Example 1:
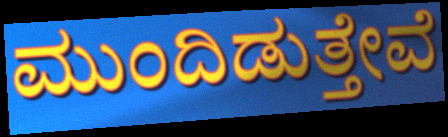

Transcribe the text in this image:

ಮುಂದಿಡುತ್ತೇವೆ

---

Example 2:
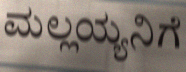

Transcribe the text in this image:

ಮಲ್ಲಯ್ಯನಿಗೆ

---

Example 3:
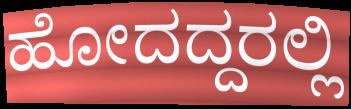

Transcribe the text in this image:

ಹೋದದ್ದರಲ್ಲಿ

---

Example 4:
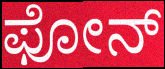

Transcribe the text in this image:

ಫೋನ್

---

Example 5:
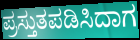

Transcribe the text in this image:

ಪ್ರಸ್ತುತಪಡಿಸಿದಾಗ